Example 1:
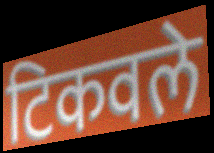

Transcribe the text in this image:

टिकवले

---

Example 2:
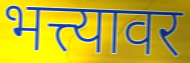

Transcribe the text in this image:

भत्त्यावर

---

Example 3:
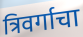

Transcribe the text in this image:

त्रिवर्गाचा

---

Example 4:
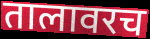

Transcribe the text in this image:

तालावरच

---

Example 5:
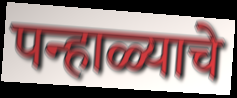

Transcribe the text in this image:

पन्हाळ्याचे